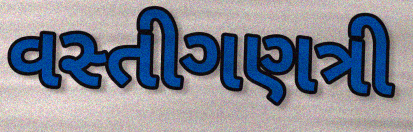
વસ્તીગણત્રી